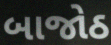
બાજોઠ